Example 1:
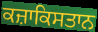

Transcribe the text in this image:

ਕਜ਼ਾਕਿਸਤਾਨ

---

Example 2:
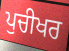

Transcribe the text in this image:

ਪੁਚੀਖਰ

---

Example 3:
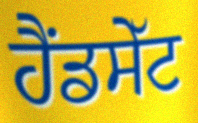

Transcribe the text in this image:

ਹੈਂਡਸੇੱਟ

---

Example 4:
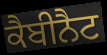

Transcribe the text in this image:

ਕੈਬੀਨੈਟ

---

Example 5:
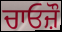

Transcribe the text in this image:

ਚਾਓਜ਼ੌ